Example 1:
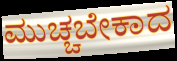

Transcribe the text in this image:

ಮುಚ್ಚಬೇಕಾದ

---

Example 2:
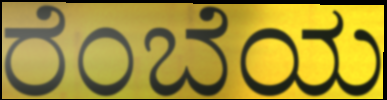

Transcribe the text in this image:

ರೆಂಬೆಯ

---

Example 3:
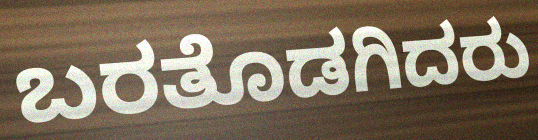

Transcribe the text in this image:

ಬರತೊಡಗಿದರು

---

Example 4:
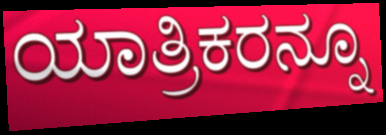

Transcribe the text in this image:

ಯಾತ್ರಿಕರನ್ನೂ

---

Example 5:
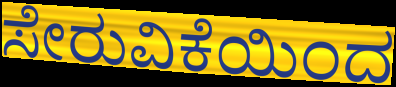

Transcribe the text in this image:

ಸೇರುವಿಕೆಯಿಂದ